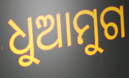
ଧୁଆମୁଗ